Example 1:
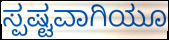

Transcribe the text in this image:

ಸ್ಪಷ್ಟವಾಗಿಯೂ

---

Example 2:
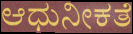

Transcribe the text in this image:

ಆಧುನೀಕತೆ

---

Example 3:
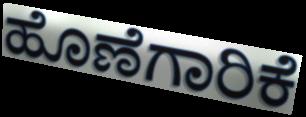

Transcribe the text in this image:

ಹೊಣೆಗಾರಿಕೆ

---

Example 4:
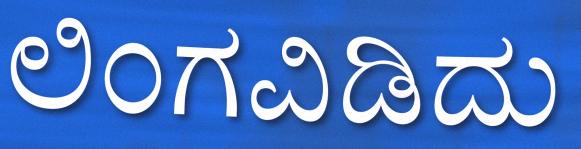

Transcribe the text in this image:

ಲಿಂಗವಿಡಿದು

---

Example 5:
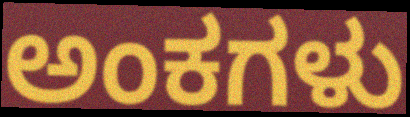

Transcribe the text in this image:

ಅಂಕಗಳು